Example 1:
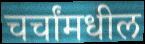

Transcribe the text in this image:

चर्चांमधील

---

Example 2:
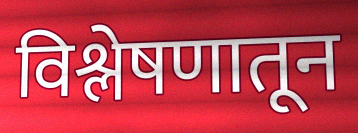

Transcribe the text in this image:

विश्लेषणातून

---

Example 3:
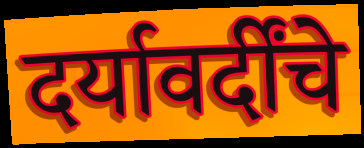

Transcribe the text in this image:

दर्यावर्दींचे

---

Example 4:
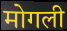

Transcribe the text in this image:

मोगली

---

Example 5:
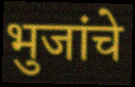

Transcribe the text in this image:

भुजांचे